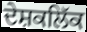
ਦੇਸ਼ਕਲਿੱਕ